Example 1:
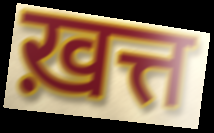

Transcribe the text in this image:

ख़त्त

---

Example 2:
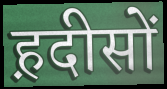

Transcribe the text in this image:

ह़दीसों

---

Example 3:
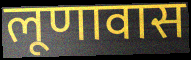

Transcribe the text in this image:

लूणावास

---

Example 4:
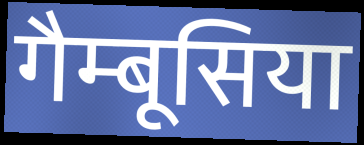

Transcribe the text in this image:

गैम्बूसिया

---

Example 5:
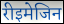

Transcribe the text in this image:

रीइमेजिन